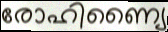
രോഹിണ്യൈ